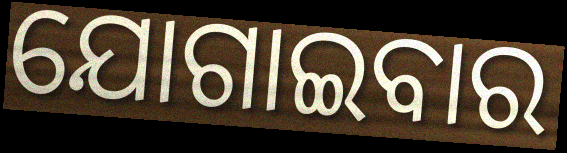
ଯୋଗାଇବାର